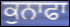
ਕੁਨਾਫਾ